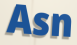
Asn